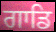
ਗਾਡਿ